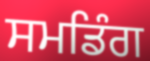
ਸਮਡਿੰਗ